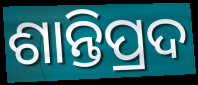
ଶାନ୍ତିପ୍ରଦ